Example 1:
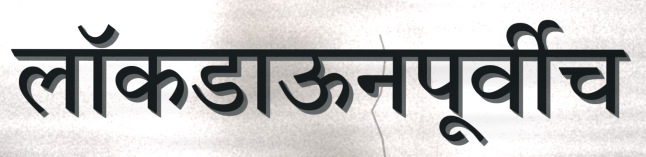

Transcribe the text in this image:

लॉकडाऊनपूर्वीच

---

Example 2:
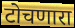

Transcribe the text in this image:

टोचणारा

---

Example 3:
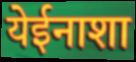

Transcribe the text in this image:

येईनाशा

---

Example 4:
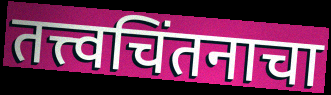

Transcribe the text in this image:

तत्त्वचिंतनाचा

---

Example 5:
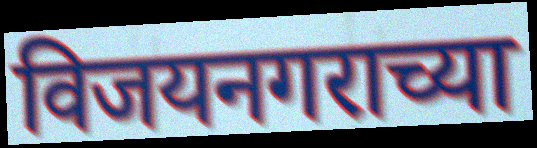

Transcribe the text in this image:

विजयनगराच्या